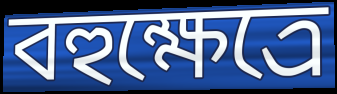
বহুক্ষেত্রে